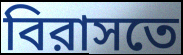
বিরাসতে